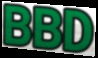
BBD